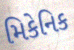
મિકેનિક